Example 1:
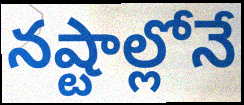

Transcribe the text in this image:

నష్టాల్లోనే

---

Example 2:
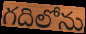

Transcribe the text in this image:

గదిలోను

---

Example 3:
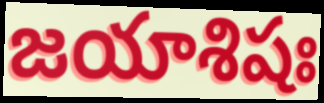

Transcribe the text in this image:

జయాశిషః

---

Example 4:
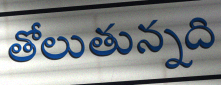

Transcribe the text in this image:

తోలుతున్నది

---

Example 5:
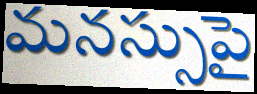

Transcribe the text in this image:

మనస్సుపై